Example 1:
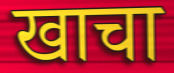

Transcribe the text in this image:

खाचा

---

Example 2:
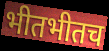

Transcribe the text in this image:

भीतभीतच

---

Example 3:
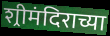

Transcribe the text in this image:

श्रीमंदिराच्या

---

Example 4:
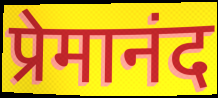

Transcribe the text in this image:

प्रेमानंद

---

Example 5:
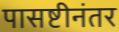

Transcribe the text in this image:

पासष्टीनंतर